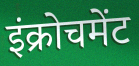
इंक्रोचमेंट